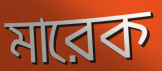
মারেক